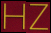
HZ